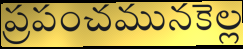
ప్రపంచమునకెల్ల